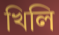
খিলি